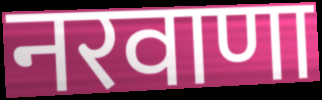
नरवाणा